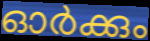
ഓർക്കും